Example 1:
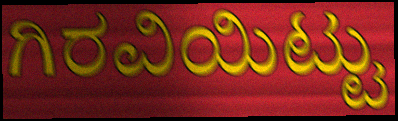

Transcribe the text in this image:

ಗಿರವಿಯಿಟ್ಟು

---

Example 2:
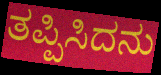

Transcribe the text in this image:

ತಪ್ಪಿಸಿದನು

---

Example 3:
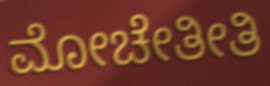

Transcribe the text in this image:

ಮೋಚೇತೀತಿ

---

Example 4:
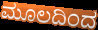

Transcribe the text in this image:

ಮೂಲದಿಂದ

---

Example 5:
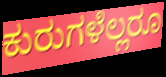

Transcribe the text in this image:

ಕುರುಗಳೆಲ್ಲರೂ